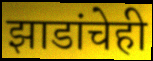
झाडांचेही